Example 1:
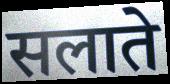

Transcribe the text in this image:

सलाते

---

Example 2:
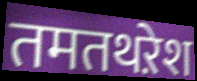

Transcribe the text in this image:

तमतथऱेश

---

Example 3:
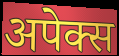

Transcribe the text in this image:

अपेक्स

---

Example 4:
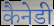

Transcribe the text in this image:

कैनेडी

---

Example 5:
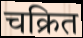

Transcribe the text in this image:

चक्रित